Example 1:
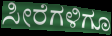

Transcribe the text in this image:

ಸೀರೆಗಳಿಗೂ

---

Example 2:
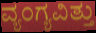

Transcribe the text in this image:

ವ್ಯಂಗ್ಯವಿತ್ತು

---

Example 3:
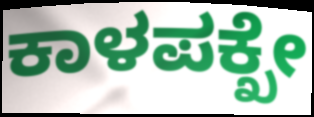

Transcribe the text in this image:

ಕಾಳಪಕ್ಖೇ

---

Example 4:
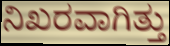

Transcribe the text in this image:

ನಿಖರವಾಗಿತ್ತು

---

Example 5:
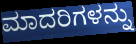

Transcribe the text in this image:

ಮಾದರಿಗಳನ್ನು